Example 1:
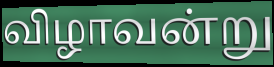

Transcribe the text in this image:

விழாவன்று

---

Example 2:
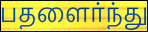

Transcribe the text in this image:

பதளைர்ந்து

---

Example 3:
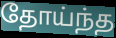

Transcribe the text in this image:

தோய்ந்த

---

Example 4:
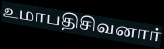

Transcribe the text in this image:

உமாபதிசிவனார்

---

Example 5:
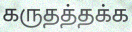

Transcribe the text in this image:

கருதத்தக்க